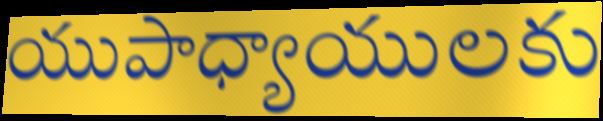
యుపాధ్యాయులకు